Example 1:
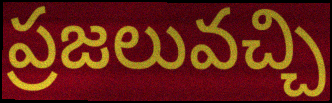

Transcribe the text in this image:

ప్రజలువచ్చి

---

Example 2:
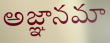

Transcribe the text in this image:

అజ్ఞానమా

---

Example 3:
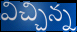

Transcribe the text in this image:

విచ్చిన్న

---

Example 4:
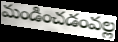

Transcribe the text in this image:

మండించడంవల్ల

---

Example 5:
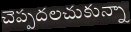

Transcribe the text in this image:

చెప్పదలచుకున్నా